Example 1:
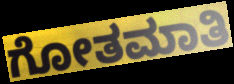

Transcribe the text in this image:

ಗೋತಮಾತಿ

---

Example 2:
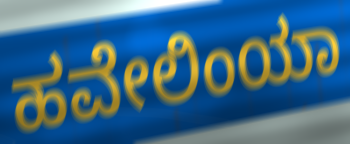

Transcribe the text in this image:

ಹವೇಲಿಂಯಾ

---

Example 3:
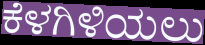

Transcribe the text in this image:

ಕೆಳಗಿಳಿಯಲು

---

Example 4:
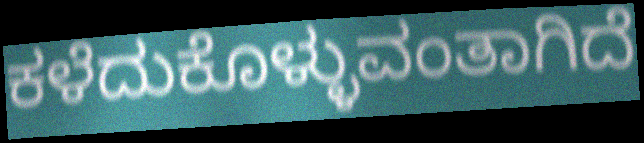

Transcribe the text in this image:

ಕಳೆದುಕೊಳ್ಳುವಂತಾಗಿದೆ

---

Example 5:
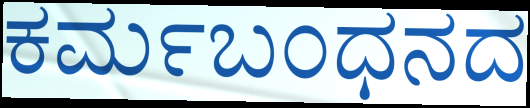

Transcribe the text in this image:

ಕರ್ಮಬಂಧನದ